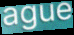
ague